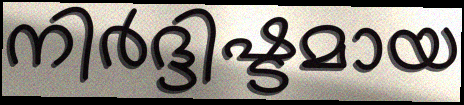
നിർദ്ദിഷ്ടമായ